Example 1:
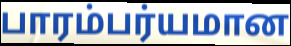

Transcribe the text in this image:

பாரம்பர்யமான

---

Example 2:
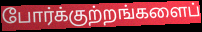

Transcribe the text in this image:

போர்க்குற்றங்களைப்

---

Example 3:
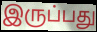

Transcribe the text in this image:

இருப்பது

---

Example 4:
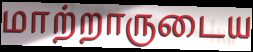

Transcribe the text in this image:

மாற்றாருடைய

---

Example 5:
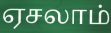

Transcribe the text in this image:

ஏசலாம்